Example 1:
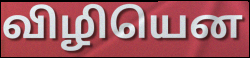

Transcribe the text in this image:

விழியென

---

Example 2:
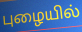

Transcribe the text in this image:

புழையில்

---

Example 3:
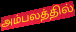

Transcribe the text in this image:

அம்பலத்தில்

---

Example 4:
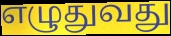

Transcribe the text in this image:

எழுதுவது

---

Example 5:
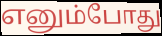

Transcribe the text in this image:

எனும்போது